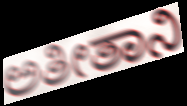
ಅತೀತಾನಿ